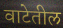
वाटेतील